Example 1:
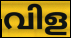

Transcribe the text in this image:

വിള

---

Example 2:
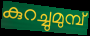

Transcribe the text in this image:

കുറച്ചുമുമ്പ്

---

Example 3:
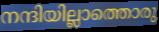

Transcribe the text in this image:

നന്ദിയില്ലാത്തൊരു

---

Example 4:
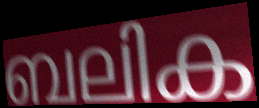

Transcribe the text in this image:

ബലിക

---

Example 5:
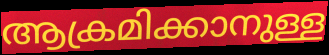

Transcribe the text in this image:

ആക്രമിക്കാനുള്ള